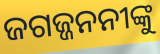
ଜଗଜ୍ଜନନୀଙ୍କୁ